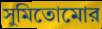
সুমিতোমোর